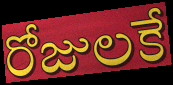
రోజులకే